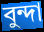
বুন্দা